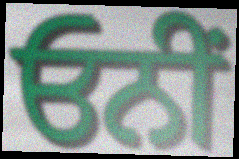
ਓਨੀਂ